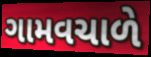
ગામવચાળે